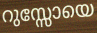
റുസ്സോയെ